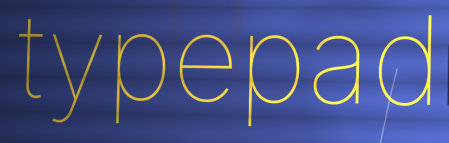
typepad